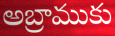
అబ్రాముకు